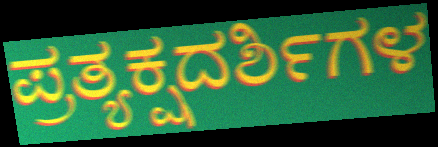
ಪ್ರತ್ಯಕ್ಷದರ್ಶಿಗಳ